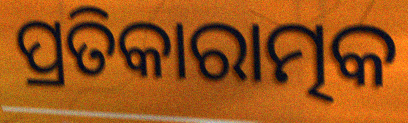
ପ୍ରତିକାରାତ୍ମକ